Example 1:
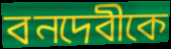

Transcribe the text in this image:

বনদেবীকে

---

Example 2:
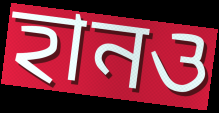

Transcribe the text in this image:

হানও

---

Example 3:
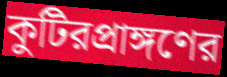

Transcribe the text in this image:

কুটিরপ্রাঙ্গণের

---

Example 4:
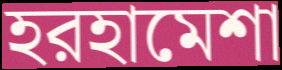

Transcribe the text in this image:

হরহামেশা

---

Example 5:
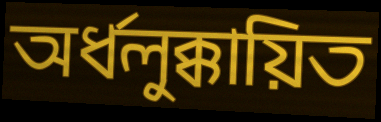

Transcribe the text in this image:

অর্ধলুক্কায়িত